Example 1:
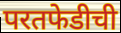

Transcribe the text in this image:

परतफेडीची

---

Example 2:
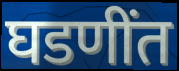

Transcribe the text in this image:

घडणींत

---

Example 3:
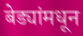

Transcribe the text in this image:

बेड्यांमधून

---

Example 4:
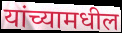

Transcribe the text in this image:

यांच्यामधील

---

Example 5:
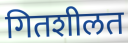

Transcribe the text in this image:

गितशीलत